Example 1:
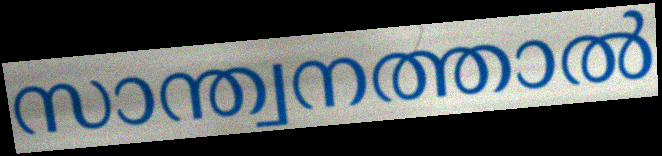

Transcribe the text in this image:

സാന്ത്വനത്താൽ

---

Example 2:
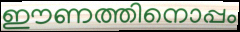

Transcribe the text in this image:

ഈണത്തിനൊപ്പം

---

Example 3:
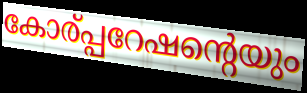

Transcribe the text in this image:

കോര്പ്പറേഷന്റെയും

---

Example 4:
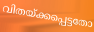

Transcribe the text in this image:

വിതയ്ക്കപ്പെട്ടതോ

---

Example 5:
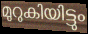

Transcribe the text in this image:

മുറുകിയിട്ടും